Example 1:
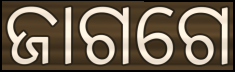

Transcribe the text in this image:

ଜାଗଗେ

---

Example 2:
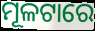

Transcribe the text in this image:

ମୂଳଟାରେ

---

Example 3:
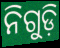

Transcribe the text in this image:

ନିଗୁଡ଼ି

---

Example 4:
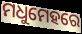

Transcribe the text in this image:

ମଧୁମେହରେ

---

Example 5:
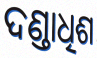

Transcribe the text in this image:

ଦଣ୍ଡାଧିଶ